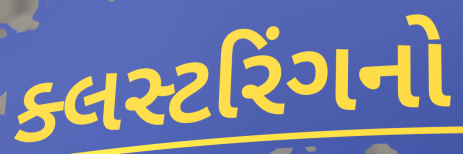
ક્લસ્ટરિંગનો